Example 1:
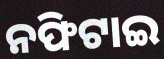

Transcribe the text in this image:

ନଫିଟାଇ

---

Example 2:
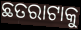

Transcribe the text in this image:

ଛତରାଟାକୁ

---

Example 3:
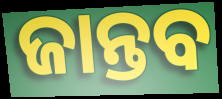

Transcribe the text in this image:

ଜାନ୍ତବ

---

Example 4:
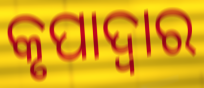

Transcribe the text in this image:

କୃପାଦ୍ଵାର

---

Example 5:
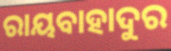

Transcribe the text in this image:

ରାୟବାହାଦୁର